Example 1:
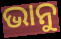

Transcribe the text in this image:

ଭାନୁ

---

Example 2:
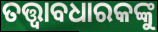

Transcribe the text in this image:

ତତ୍ତ୍ଵାବଧାରକଙ୍କୁ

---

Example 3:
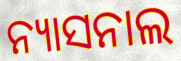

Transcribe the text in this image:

ନ୍ୟାସନାଲ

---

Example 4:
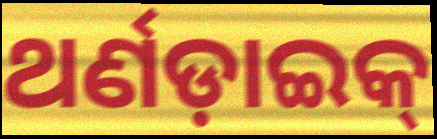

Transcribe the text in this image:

ଥର୍ଣଡ଼ାଇକ୍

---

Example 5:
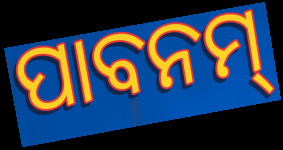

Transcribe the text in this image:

ପାବନମ୍